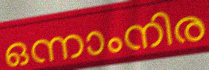
ഒന്നാംനിര